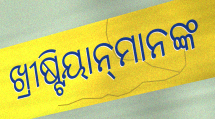
ଖ୍ରୀଷ୍ଟିୟାନ୍‌ମାନଙ୍କ